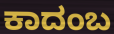
ಕಾದಂಬ